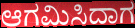
ಆಗಮಿಸಿದಾಗ